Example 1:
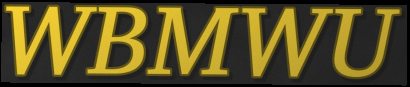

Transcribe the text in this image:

WBMWU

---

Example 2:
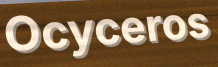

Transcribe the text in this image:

Ocyceros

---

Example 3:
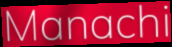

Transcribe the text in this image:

Manachi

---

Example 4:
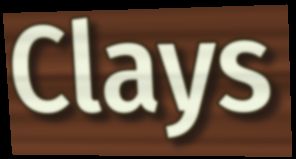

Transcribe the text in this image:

Clays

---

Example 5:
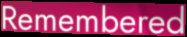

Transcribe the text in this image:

Remembered